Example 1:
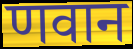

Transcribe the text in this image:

णवान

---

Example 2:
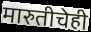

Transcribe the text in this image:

मारुतीचेही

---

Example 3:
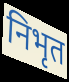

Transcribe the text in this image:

निभृत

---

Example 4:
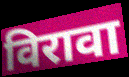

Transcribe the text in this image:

विरावा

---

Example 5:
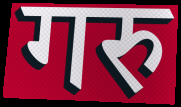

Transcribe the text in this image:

गरु